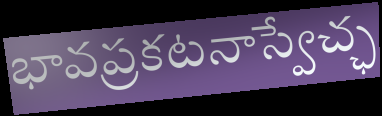
భావప్రకటనాస్వేచ్ఛ